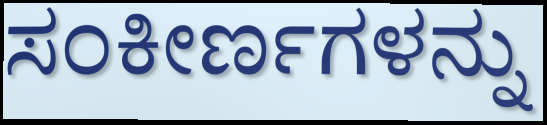
ಸಂಕೀರ್ಣಗಳನ್ನು